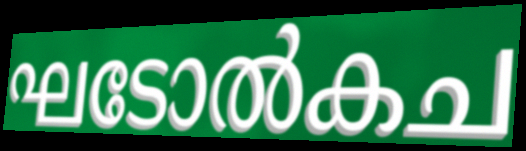
ഘടോൽകച